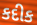
કદીક